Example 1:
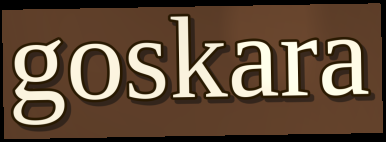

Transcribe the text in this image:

goskara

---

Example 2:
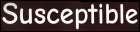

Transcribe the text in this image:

Susceptible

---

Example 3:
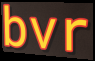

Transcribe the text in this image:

bvr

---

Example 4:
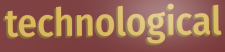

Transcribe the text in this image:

technological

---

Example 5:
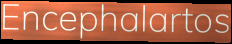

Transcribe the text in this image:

Encephalartos